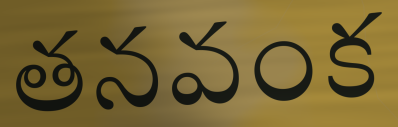
తనవంక